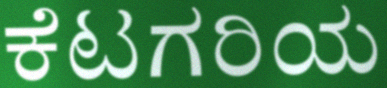
ಕೆಟಗರಿಯ